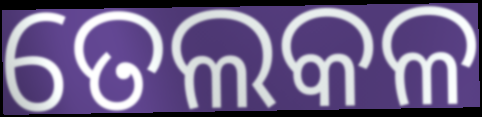
ତେଲକଳ